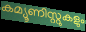
കമ്യൂണിസ്റ്റുകളും